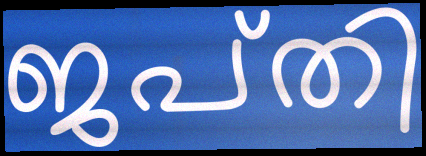
ജപ്‌തി